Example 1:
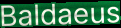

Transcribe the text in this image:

Baldaeus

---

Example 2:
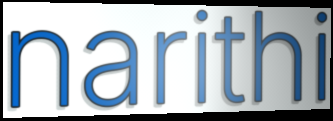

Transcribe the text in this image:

narithi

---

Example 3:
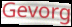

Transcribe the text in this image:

Gevorg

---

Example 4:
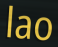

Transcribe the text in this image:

lao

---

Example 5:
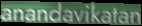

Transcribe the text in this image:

anandavikatan